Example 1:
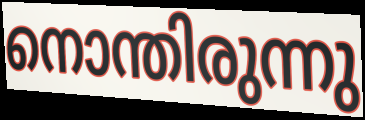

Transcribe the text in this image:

നൊന്തിരുന്നു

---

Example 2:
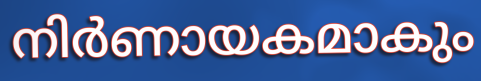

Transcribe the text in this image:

നിർണായകമാകും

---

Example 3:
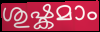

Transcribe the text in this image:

ശുഷ്കമാം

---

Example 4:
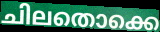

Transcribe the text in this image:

ചിലതൊക്കെ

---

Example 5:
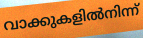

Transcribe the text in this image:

വാക്കുകളിൽനിന്ന്